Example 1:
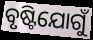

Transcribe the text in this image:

ବୃଷ୍ଟିଯୋଗୁଁ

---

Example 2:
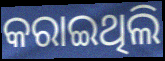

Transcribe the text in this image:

କରାଇଥିଲି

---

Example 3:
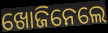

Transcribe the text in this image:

ଖୋଜିନେଲେ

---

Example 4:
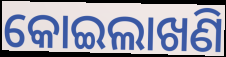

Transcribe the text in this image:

କୋଇଲାଖଣି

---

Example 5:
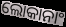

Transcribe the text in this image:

ଲୋକାନାଂ